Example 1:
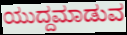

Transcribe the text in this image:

ಯುದ್ದಮಾಡುವ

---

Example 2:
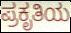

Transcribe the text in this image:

ಪ್ರಕೃತಿಯ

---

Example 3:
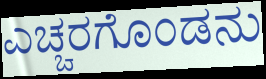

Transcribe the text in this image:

ಎಚ್ಚರಗೊಂಡನು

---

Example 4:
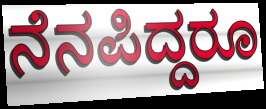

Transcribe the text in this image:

ನೆನಪಿದ್ದರೂ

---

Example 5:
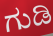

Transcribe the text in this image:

ಗುಡಿ